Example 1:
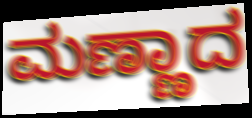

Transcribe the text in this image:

ಮಣ್ಣಾದ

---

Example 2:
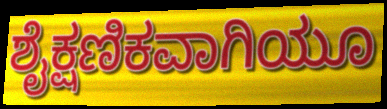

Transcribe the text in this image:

ಶೈಕ್ಷಣಿಕವಾಗಿಯೂ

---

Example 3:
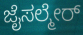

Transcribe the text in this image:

ಜೈಸಲ್ಮೇರ್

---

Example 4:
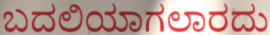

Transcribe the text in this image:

ಬದಲಿಯಾಗಲಾರದು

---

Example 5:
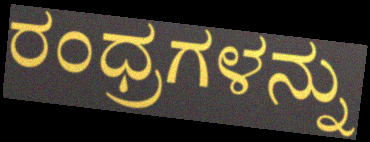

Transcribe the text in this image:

ರಂಧ್ರಗಳನ್ನು